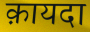
क़ायदा